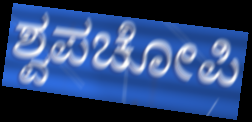
ಶ್ವಪಚೋಪಿ